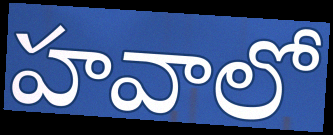
హవాలో